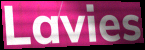
Lavies